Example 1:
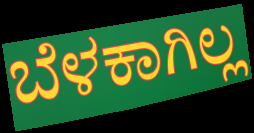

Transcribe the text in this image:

ಬೆಳಕಾಗಿಲ್ಲ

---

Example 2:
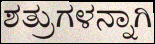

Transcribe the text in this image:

ಶತ್ರುಗಳನ್ನಾಗಿ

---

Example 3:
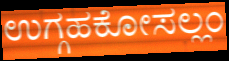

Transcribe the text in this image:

ಉಗ್ಗಹಕೋಸಲ್ಲಂ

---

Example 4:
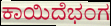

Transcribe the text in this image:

ಕಾಯಿದೆಭಂಗ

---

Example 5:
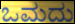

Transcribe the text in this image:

ಒಮದು